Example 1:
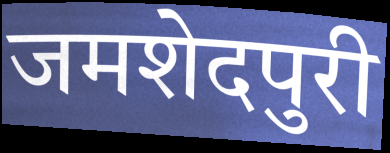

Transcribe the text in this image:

जमशेदपुरी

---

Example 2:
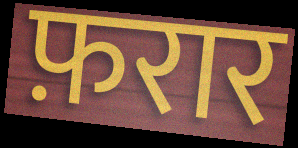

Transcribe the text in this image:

फ़रार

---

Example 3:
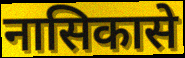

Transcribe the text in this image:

नासिकासे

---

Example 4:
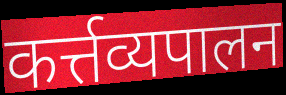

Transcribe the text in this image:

कर्त्तव्यपालन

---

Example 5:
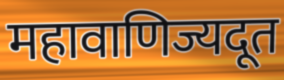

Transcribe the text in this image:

महावाणिज्यदूत